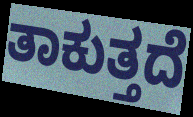
ತಾಕುತ್ತದೆ